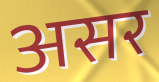
असर